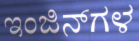
ಇಂಜಿನ್‌ಗಳ